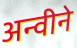
अन्वीने